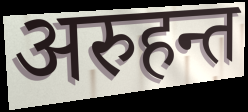
अरुहन्त